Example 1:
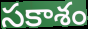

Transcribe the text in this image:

సకాశం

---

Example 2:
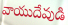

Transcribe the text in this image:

వాయుదేవుడి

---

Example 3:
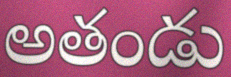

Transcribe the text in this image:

అతండు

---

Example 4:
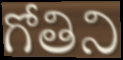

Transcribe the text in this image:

గోతిని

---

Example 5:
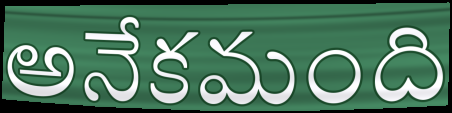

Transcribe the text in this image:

అనేకమంది